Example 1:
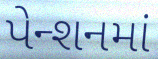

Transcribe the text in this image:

પેન્શનમાં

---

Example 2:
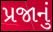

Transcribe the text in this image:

પ્રજાનું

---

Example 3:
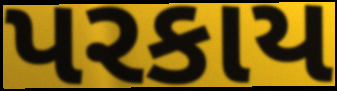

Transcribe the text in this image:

પરકાય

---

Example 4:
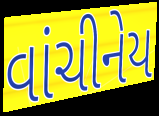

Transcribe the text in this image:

વાંચીનેય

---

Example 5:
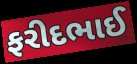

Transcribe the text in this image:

ફરીદભાઈ